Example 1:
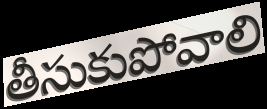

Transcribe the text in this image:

తీసుకుపోవాలి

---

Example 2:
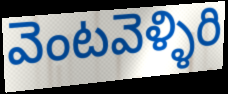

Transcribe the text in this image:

వెంటవెళ్ళిరి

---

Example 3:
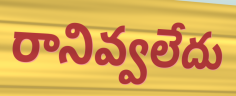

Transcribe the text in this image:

రానివ్వలేదు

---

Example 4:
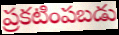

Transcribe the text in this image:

ప్రకటింపబడు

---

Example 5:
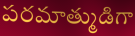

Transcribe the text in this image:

పరమాత్ముడిగా